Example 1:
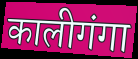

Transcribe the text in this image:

कालीगंगा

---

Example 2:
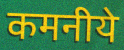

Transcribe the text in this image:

कमनीये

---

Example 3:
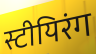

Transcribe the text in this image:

स्टीयिरंग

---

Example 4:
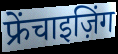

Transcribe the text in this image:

फ्रेंचाइज़िंग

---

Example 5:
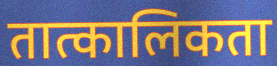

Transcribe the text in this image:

तात्कालिकता